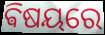
ଵିଷୟରେ